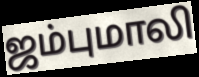
ஜம்புமாலி